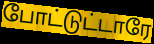
போட்டுட்டாரே